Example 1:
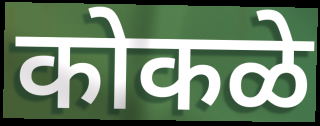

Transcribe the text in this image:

कोकळे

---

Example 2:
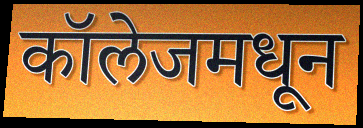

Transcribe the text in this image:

कॉलेजमधून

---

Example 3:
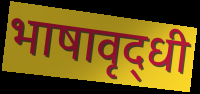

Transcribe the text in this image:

भाषावृद्धी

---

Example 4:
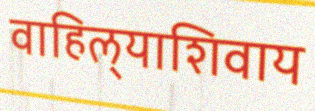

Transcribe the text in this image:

वाहिल्याशिवाय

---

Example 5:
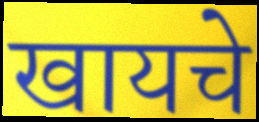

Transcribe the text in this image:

खायचे